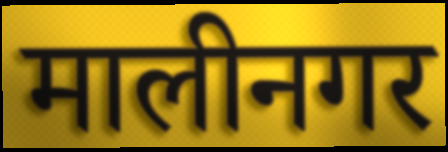
मालीनगर